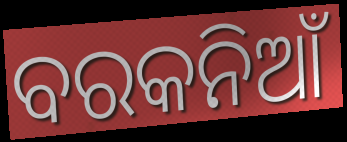
ବରକନିଆଁ